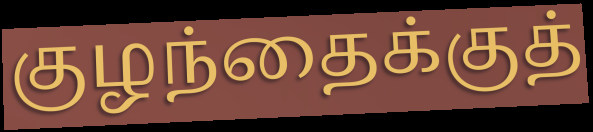
குழந்தைக்குத்